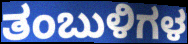
ತಂಬುಳಿಗಳ